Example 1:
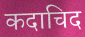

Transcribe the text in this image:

कदाचिद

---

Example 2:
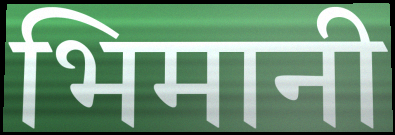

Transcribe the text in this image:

भिमानी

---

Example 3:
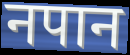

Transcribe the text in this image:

नपान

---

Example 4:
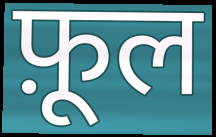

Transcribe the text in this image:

फ़ूल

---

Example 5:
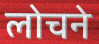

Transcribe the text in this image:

लोचने